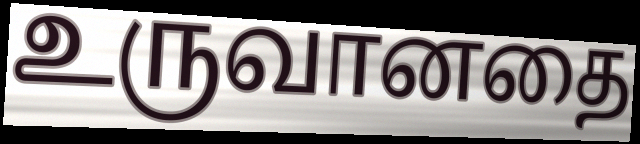
உருவானதை